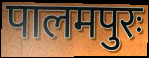
पालमपुरः